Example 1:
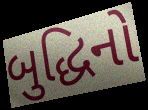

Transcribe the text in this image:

બુદ્ધિનો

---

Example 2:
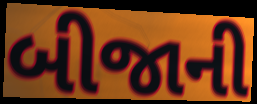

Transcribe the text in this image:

બીજાની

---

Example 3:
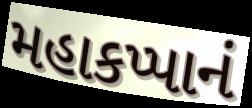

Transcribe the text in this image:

મહાકપ્પાનં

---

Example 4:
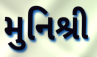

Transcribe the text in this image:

મુનિશ્રી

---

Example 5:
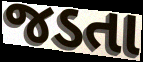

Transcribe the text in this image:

જડતા